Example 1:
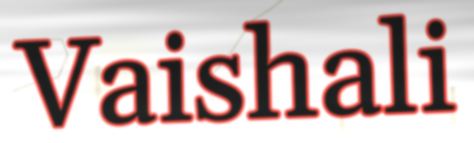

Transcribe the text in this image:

Vaishali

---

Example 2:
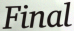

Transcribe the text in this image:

Final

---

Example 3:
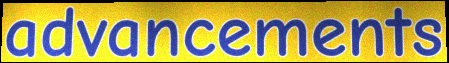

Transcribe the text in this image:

advancements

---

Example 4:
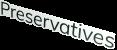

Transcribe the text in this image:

Preservatives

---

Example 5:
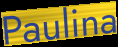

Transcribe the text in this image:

Paulina